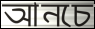
আনচে